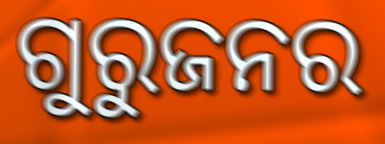
ଗୁରୁଜନର